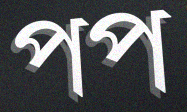
পপ